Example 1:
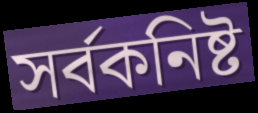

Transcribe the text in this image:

সর্বকনিষ্ট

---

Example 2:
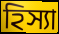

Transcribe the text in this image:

হিস্যা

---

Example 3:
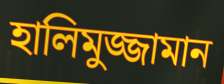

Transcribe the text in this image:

হালিমুজ্জামান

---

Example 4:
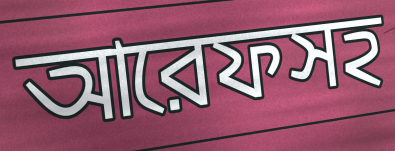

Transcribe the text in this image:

আরেফসহ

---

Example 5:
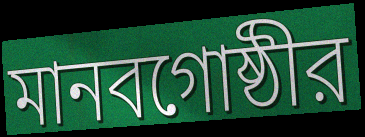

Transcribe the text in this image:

মানবগোষ্ঠীর